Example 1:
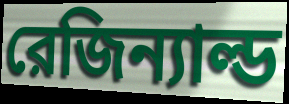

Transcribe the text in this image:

রেজিন্যাল্ড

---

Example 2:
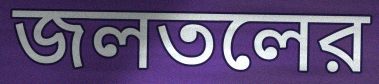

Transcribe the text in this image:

জলতলের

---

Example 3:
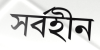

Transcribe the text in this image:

সর্বহীন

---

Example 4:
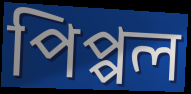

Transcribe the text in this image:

পিপ্পল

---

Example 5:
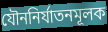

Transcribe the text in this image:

যৌননির্যাতনমূলক